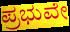
ಪ್ರಭುವೇ